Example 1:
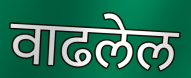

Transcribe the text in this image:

वाढलेल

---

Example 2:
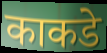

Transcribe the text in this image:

काकडे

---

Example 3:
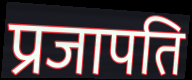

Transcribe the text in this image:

प्रजापति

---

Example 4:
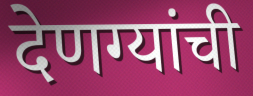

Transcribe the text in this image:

देणग्यांची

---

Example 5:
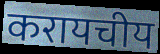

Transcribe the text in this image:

करायचीय